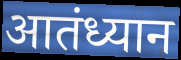
आतंध्यान